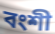
বংশী